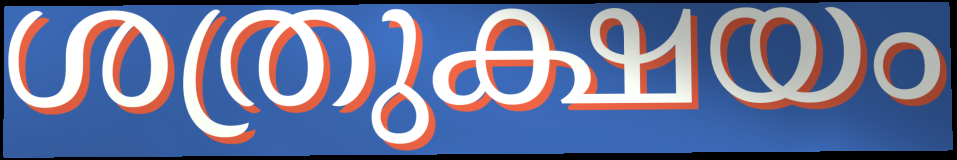
ശത്രുക്ഷയം